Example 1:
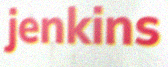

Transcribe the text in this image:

jenkins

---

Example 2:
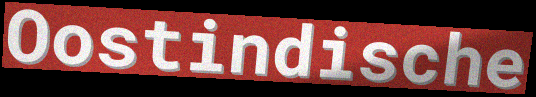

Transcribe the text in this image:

Oostindische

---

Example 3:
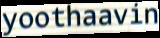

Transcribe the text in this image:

yoothaavin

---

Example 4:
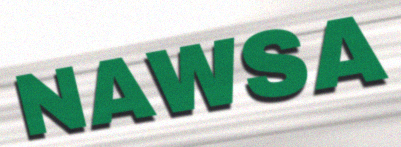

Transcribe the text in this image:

NAWSA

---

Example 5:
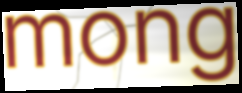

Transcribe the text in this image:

mong